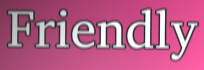
Friendly